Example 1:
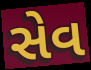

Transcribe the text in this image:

સેવ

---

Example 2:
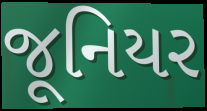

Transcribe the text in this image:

જૂનિયર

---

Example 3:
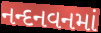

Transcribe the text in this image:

નન્દનવનમાં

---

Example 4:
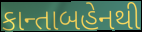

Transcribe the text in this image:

કાન્તાબહેનથી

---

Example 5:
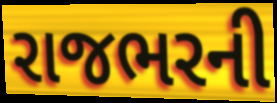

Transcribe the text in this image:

રાજભરની